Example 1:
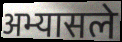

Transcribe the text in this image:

अभ्यासले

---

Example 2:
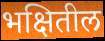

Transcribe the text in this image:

भक्षितील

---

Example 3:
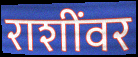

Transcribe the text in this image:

राशींवर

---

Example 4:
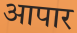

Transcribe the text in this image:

आपार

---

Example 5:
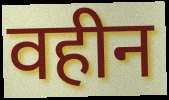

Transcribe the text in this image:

वहीन